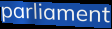
parliament